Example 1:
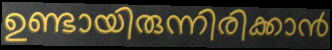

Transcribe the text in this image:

ഉണ്ടായിരുന്നിരിക്കാൻ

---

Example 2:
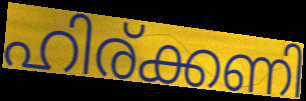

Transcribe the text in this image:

ഹിര്ക്കണി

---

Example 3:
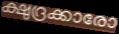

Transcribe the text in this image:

ക്ഷുദ്രക്കാരോ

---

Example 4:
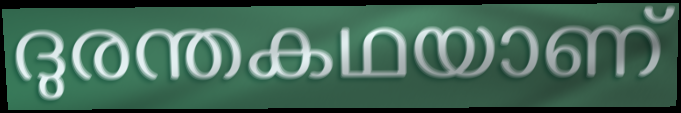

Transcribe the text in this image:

ദുരന്തകഥയാണ്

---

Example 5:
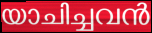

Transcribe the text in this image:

യാചിച്ചവൻ